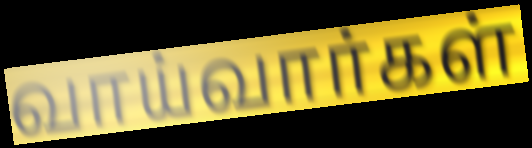
வாய்வார்கள்